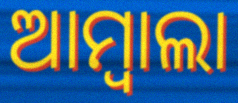
ଆମ୍ବାଲା